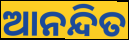
ଆନନ୍ଦିତ